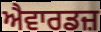
ਐਵਾਰਡਜ਼